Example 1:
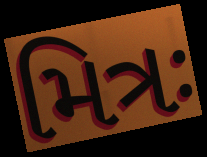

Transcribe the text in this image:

મિત્રઃ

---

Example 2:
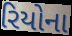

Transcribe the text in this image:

રિયોના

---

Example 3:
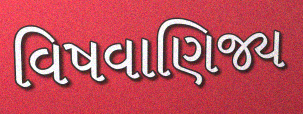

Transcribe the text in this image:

વિષવાણિજ્ય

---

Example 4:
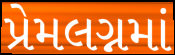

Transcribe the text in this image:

પ્રેમલગ્નમાં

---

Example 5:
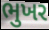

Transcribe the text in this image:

ભુખર